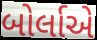
બોર્લાએ